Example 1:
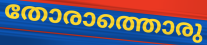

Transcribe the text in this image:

തോരാത്തൊരു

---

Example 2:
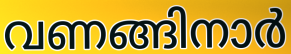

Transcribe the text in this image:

വണങ്ങിനാർ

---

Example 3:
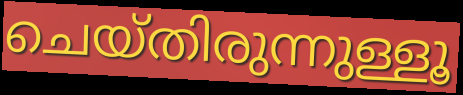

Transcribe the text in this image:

ചെയ്തിരുന്നുള്ളൂ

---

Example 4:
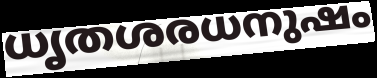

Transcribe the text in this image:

ധൃതശരധനുഷം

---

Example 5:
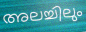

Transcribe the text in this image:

അലച്ചിലും